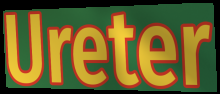
Ureter